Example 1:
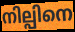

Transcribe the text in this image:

നില്പിനെ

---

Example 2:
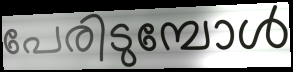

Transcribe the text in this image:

പേരിടുമ്പോൾ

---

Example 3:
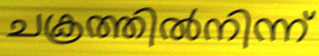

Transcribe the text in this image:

ചക്രത്തിൽനിന്ന്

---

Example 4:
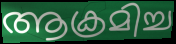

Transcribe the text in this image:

ആക്രമിച്ച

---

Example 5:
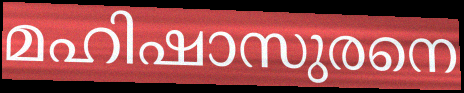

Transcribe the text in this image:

മഹിഷാസുരനെ